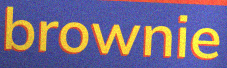
brownie